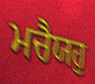
ਮਚੈਯਹੁ